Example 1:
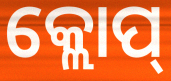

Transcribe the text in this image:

କ୍ଲୋପ୍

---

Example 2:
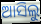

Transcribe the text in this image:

ଆସିଲୁ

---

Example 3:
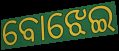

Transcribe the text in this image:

ବୋଝେଇ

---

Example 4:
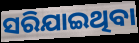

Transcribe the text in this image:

ସରିଯାଇଥିବା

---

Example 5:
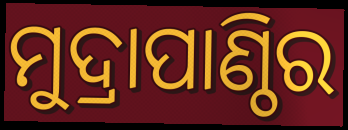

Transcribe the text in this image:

ମୁଦ୍ରାପାଣ୍ଠିର